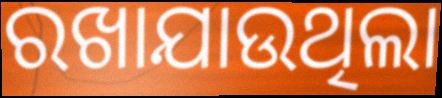
ରଖାଯାଉଥିଲା